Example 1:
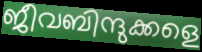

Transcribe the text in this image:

ജീവബിന്ദുക്കളെ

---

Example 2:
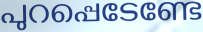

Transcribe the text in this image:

പുറപ്പെടേണ്ടേ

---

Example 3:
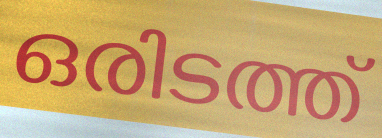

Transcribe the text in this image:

ഒരിടത്ത്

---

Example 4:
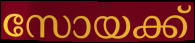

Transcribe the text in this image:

സോയക്ക്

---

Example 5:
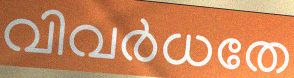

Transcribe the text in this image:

വിവർധതേ